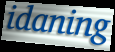
idaning